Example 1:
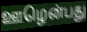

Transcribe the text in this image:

ஊழென்பது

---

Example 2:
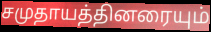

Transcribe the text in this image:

சமுதாயத்தினரையும்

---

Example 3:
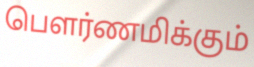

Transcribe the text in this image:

பௌர்ணமிக்கும்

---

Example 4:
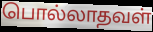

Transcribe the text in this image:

பொல்லாதவள்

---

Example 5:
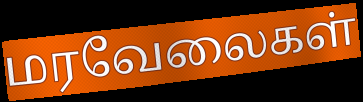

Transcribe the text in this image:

மரவேலைகள்